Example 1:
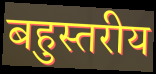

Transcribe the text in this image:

बहुस्तरीय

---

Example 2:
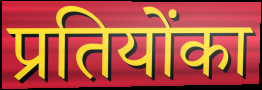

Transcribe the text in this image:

प्रतियोंका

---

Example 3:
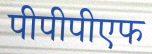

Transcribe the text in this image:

पीपीपीएफ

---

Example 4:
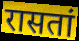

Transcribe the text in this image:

रासतां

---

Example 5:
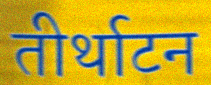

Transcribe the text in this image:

तीर्थाटन